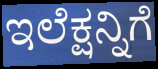
ಇಲೆಕ್ಷನ್ನಿಗೆ